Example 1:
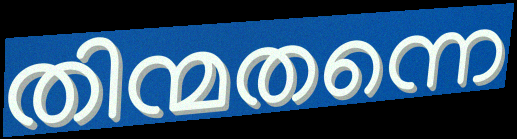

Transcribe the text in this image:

തിന്മതന്നെ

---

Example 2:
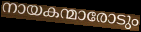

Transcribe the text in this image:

നായകന്മാരോടും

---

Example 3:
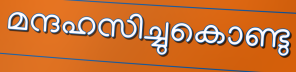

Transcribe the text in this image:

മന്ദഹസിച്ചുകൊണ്ടു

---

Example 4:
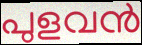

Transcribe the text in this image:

പുളവൻ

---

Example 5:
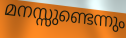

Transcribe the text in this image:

മനസ്സുണ്ടെന്നും